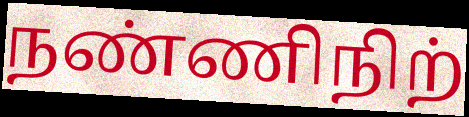
நண்ணிநிற்